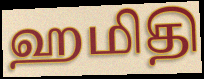
ஹமிதி